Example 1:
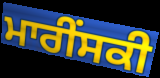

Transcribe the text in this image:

ਮਾਰੀੰਸਕੀ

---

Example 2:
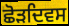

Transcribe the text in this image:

ਛੋੜਦਿਵਸ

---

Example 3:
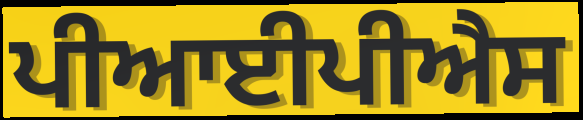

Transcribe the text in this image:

ਪੀਆਈਪੀਐਸ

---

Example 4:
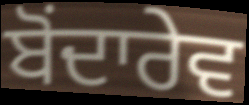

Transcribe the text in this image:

ਬੋਂਦਾਰੇਵ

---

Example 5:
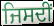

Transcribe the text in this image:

ਜਿਸਦੀਂ